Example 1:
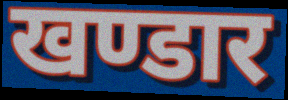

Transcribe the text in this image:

खण्डार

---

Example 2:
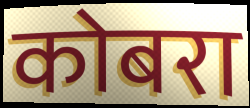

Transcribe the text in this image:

कोबरा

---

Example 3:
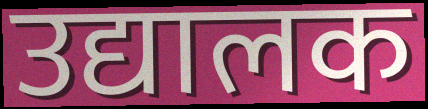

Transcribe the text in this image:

उद्यालक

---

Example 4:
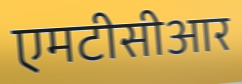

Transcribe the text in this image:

एमटीसीआर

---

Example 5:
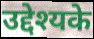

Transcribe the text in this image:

उद्देश्यके